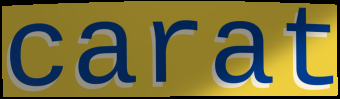
carat